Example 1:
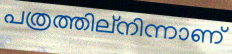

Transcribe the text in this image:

പത്രത്തില്നിന്നാണ്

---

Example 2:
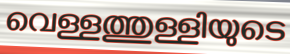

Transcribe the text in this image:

വെള്ളത്തുള്ളിയുടെ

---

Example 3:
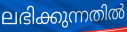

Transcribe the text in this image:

ലഭിക്കുന്നതിൽ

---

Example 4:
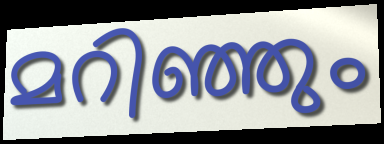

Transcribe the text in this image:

മറിഞ്ഞും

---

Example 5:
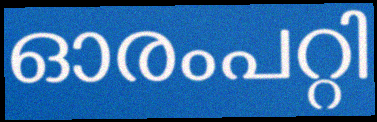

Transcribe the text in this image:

ഓരംപറ്റി